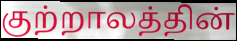
குற்றாலத்தின்